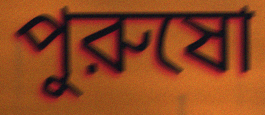
পুৰুষো